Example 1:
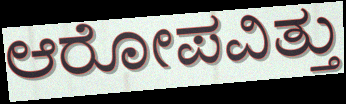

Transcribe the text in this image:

ಆರೋಪವಿತ್ತು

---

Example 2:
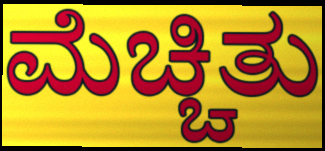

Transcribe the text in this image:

ಮೆಚ್ಚಿತು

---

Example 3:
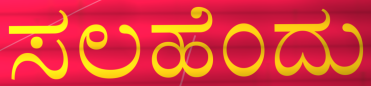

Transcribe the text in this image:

ಸಲಹೆಂದು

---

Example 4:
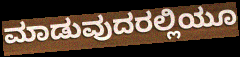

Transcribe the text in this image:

ಮಾಡುವುದರಲ್ಲಿಯೂ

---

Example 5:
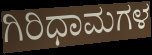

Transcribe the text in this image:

ಗಿರಿಧಾಮಗಳ